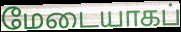
மேடையாகப்